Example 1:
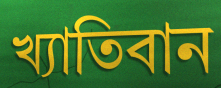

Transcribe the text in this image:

খ্যাতিবান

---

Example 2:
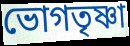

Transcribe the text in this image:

ভোগতৃষ্ণা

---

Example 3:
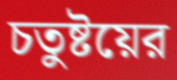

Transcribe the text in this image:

চতুষ্টয়ের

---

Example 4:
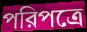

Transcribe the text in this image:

পরিপত্রে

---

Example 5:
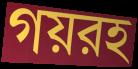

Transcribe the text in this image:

গয়রহ